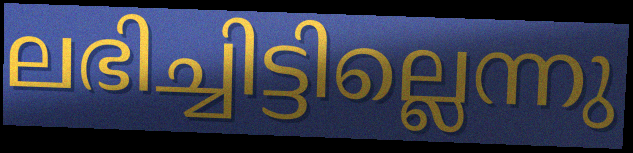
ലഭിച്ചിട്ടില്ലെന്നു